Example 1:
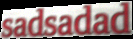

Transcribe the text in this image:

sadsadad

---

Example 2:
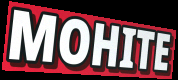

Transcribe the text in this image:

MOHITE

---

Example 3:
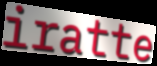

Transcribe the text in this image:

iratte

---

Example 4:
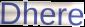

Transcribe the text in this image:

Dhere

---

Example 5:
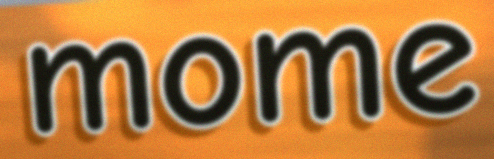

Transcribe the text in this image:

mome